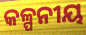
କଳ୍ପନୀୟ